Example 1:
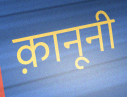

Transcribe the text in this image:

क़ानूनी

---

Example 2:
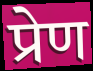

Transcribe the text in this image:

प्रेण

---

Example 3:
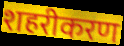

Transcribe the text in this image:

शहरीकरण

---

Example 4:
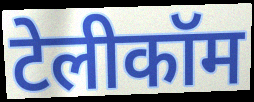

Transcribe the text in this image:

टेलीकॉम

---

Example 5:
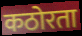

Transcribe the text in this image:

कठोरता